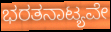
ಭರತನಾಟ್ಯವೇ